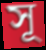
সূ